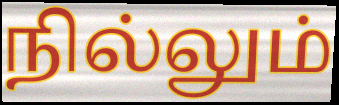
நில்லும்